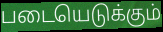
படையெடுக்கும்